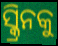
ସ୍କ୍ରିନକୁ